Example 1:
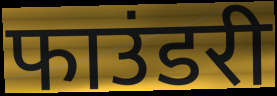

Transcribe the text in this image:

फाउंडरी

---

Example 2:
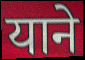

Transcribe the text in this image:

याने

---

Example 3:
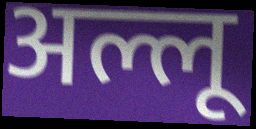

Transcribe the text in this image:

अल्लू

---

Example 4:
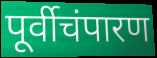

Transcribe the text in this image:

पूर्वीचंपारण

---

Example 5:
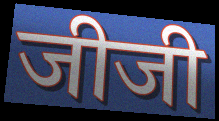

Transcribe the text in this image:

जीजी